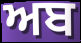
ਅਬ